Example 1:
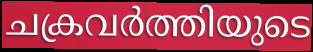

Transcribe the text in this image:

ചക്രവർത്തിയുടെ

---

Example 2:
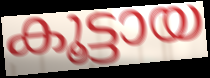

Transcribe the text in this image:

കൂട്ടായ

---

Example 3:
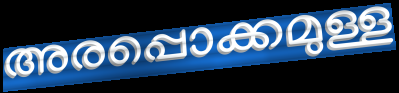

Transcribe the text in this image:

അരപ്പൊക്കമുള്ള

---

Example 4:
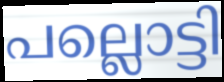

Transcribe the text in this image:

പല്ലൊട്ടി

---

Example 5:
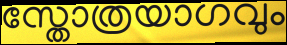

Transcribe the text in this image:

സ്തോത്രയാഗവും